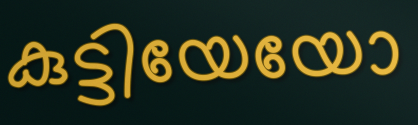
കുട്ടിയേയോ